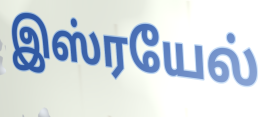
இஸ்ரயேல்